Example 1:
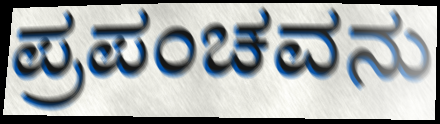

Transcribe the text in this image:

ಪ್ರಪಂಚವನು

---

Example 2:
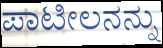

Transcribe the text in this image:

ಪಾಟೀಲನನ್ನು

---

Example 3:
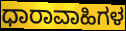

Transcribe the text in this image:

ಧಾರಾವಾಹಿಗಳ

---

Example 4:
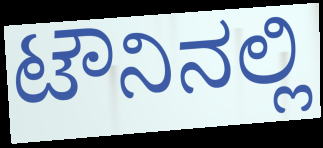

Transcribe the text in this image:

ಟೌನಿನಲ್ಲಿ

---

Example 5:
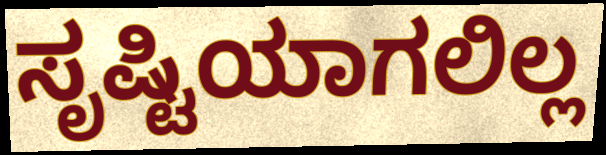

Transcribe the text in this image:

ಸೃಷ್ಟಿಯಾಗಲಿಲ್ಲ